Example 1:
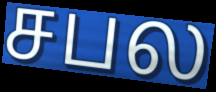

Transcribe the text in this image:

சபல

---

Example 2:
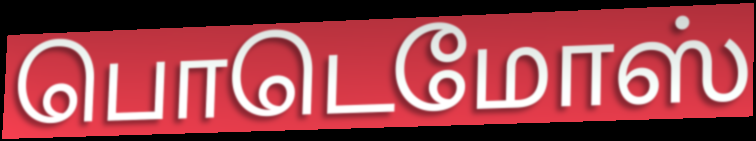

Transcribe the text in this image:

பொடெமோஸ்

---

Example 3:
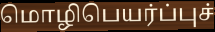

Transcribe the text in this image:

மொழிபெயர்ப்புச்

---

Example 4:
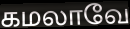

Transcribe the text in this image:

கமலாவே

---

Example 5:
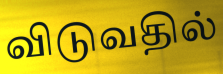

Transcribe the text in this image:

விடுவதில்